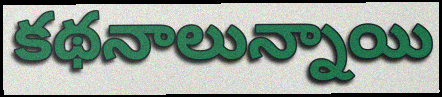
కథనాలున్నాయి